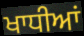
ਖਾਧੀਆਂ